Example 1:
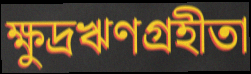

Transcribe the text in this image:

ক্ষুদ্রঋণগ্রহীতা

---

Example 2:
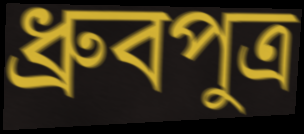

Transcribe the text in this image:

ধ্রুবপুত্র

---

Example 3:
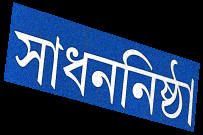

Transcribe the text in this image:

সাধননিষ্ঠা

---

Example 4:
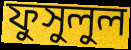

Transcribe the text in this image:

ফুসুলুল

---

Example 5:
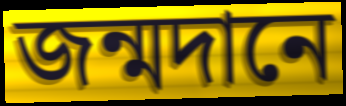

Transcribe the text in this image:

জন্মদানে